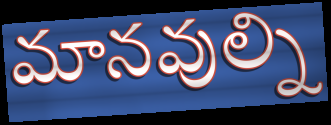
మానవుల్ని